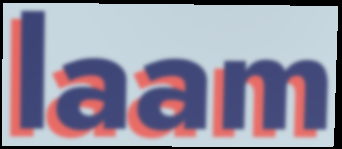
laam